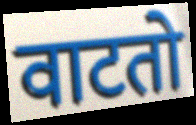
वाटतो